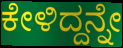
ಕೇಳಿದ್ದನ್ನೇ